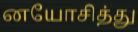
னயோசித்து